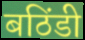
बठिंडी